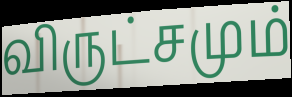
விருட்சமும்